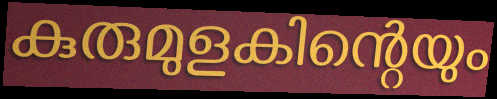
കുരുമുളകിന്റെയും